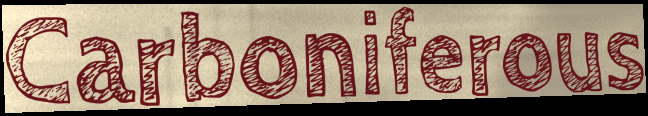
Carboniferous